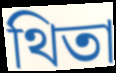
থিতা